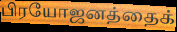
பிரயோஜனத்தைக்